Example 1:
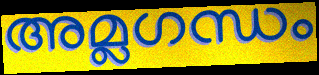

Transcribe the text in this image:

അമ്ലഗന്ധം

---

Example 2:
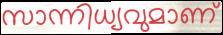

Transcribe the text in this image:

സാന്നിധ്യവുമാണ്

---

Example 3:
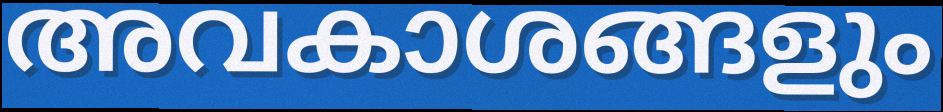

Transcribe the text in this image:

അവകാശങ്ങളും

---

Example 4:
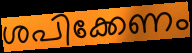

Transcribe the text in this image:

ശപിക്കേണം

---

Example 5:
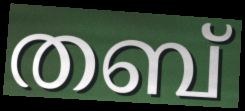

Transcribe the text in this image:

തബ്